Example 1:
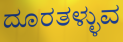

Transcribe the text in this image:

ದೂರತಳ್ಳುವ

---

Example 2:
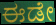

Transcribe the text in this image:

ಈಡೇ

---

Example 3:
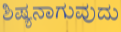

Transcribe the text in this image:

ಶಿಷ್ಯನಾಗುವುದು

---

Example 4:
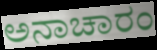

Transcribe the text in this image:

ಅನಾಚಾರಂ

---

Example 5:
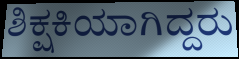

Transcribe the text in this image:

ಶಿಕ್ಷಕಿಯಾಗಿದ್ದರು